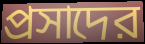
প্রসাদের